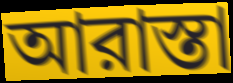
আরাস্তা